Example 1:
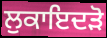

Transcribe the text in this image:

ਲੁਕਾਇਦੜੋ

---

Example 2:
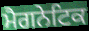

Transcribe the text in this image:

ਮੈਗਨੇਟਿਕ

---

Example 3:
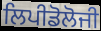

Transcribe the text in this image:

ਲਿਪੀਡੋਲੋਜੀ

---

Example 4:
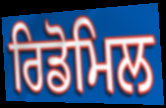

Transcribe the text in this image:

ਰਿਡੋਮਿਲ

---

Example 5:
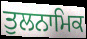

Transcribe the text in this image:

ਤੁਲਨਾਮਿਕ